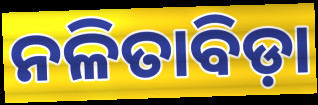
ନଳିତାବିଡ଼ା